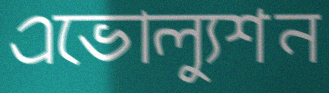
এভোল্যুশন